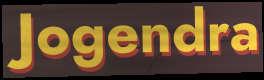
Jogendra